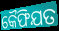
କୈଫିଯତ